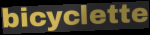
bicyclette